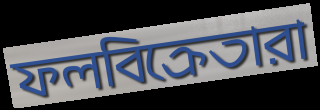
ফলবিক্রেতারা